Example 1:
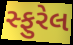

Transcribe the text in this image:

સ્ફુરેલ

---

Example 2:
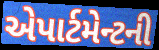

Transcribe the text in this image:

એપાર્ટમેન્ટની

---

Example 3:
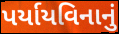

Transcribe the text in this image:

પર્યાયવિનાનું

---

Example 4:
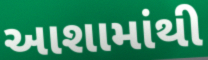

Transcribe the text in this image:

આશામાંથી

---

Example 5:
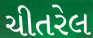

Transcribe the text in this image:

ચીતરેલ